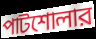
পাটশোলার